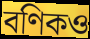
বণিকও